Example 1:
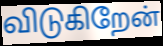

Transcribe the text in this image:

விடுகிறேன்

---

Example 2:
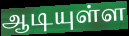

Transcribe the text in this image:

ஆடியுள்ள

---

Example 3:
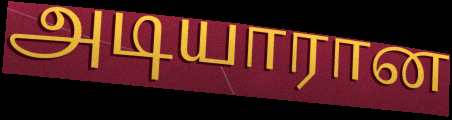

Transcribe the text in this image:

அடியாரான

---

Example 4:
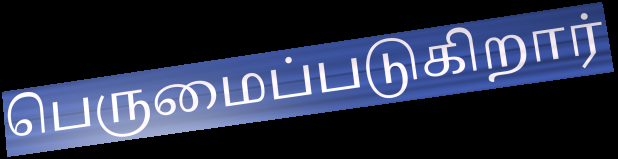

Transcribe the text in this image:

பெருமைப்படுகிறார்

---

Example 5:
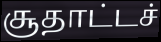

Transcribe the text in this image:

சூதாட்டச்